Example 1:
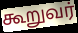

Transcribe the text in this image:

கூறுவர்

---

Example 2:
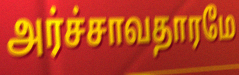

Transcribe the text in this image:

அர்ச்சாவதாரமே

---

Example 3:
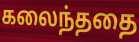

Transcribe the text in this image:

கலைந்ததை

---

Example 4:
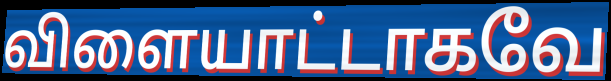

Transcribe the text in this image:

விளையாட்டாகவே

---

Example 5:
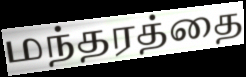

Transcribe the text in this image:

மந்தரத்தை